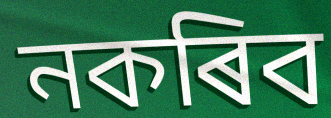
নকৰিব